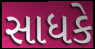
સાધકે